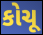
કોચૂ